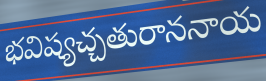
భవిష్యచ్చతురాననాయ